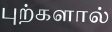
புற்களால்